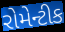
રોમેન્ટીક